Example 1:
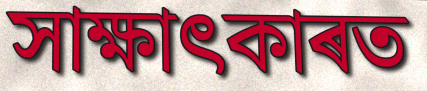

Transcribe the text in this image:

সাক্ষাৎকাৰত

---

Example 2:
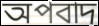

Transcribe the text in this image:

অপবাদ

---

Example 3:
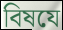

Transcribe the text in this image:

বিষযে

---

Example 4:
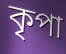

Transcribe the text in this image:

কৃপা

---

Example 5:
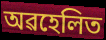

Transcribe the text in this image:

অৱহেলিত